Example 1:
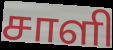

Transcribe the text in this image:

சாளி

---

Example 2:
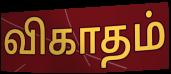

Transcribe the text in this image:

விகாதம்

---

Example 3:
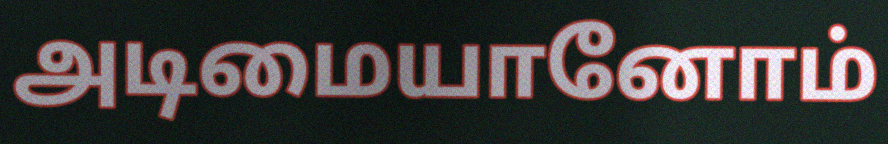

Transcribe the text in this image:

அடிமையானோம்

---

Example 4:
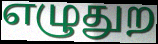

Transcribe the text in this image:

எழுதுற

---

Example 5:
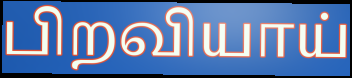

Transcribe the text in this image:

பிறவியாய்